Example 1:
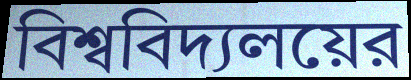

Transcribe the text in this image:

বিশ্ববিদ্যলয়ের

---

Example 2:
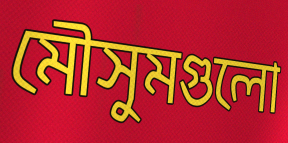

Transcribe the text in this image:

মৌসুমগুলো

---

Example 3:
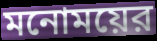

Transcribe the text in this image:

মনোময়ের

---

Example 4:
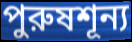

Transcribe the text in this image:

পুরুষশূন্য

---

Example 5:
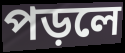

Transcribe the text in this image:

পড়লে